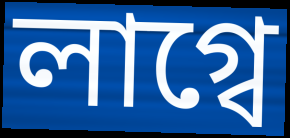
লাগ্বে